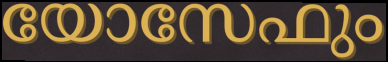
യോസേഫും